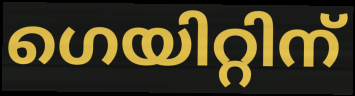
ഗെയിറ്റിന്